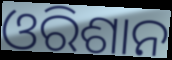
ଓରିଶାନ